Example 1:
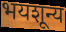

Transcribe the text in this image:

भयशून्य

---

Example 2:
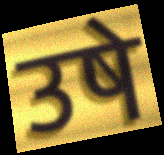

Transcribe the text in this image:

उषे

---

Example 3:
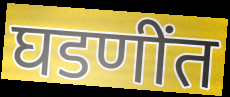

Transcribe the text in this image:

घडणींत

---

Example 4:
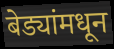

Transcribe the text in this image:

बेड्यांमधून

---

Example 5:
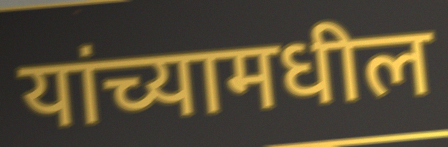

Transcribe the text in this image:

यांच्यामधील